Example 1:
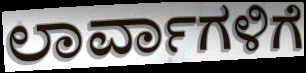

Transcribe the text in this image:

ಲಾರ್ವಾಗಳಿಗೆ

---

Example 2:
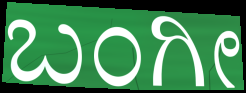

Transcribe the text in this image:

ಬಂಗೀ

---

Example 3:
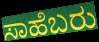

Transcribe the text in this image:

ಸಾಹೆಬರು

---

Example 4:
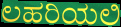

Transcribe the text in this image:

ಲಹರಿಯಲಿ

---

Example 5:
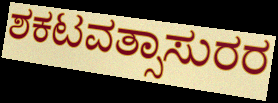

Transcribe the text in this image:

ಶಕಟವತ್ಸಾಸುರರ